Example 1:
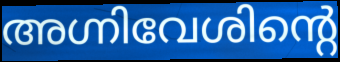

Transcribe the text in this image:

അഗ്നിവേശിന്റെ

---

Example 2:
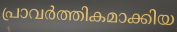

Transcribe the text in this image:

പ്രാവർത്തികമാക്കിയ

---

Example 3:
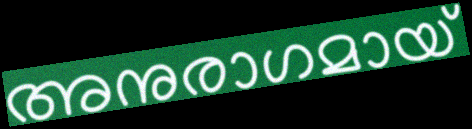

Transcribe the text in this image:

അനുരാഗമായ്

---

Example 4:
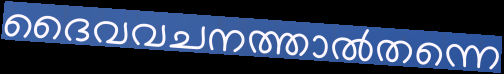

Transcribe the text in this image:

ദൈവവചനത്താൽതന്നെ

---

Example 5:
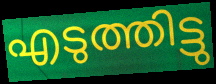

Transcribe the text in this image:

എടുത്തിട്ടു